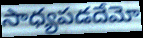
సాధ్యపడదేమో